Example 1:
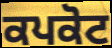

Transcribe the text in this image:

ਕਪਕੋਟ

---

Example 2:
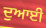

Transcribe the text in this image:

ਦੁਆਈ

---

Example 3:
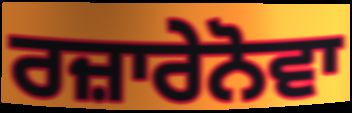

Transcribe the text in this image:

ਰਜ਼ਾਰੇਨੋਵਾ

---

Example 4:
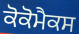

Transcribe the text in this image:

ਕੋਕੋਮੈਕਸ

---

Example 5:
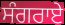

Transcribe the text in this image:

ਸੰਗਰਾਏ